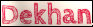
Dekhan